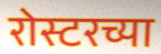
रोस्टरच्या